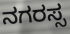
ನಗರಸ್ಸ